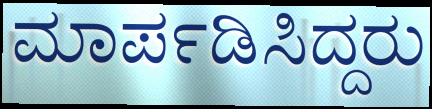
ಮಾರ್ಪಡಿಸಿದ್ದರು